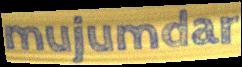
mujumdar